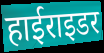
हाईराइडर